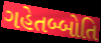
ગહેતબ્બોતિ